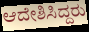
ಆದೇಶಿಸಿದ್ದರು